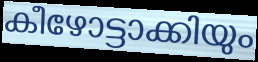
കീഴോട്ടാക്കിയും